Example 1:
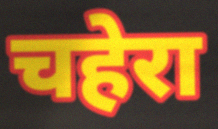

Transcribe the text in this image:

चहेरा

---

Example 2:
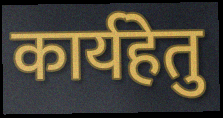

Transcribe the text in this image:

कार्यहेतु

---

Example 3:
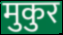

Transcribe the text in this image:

मुकुर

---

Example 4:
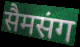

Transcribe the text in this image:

सैमसंग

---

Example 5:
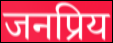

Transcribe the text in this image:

जनप्रिय